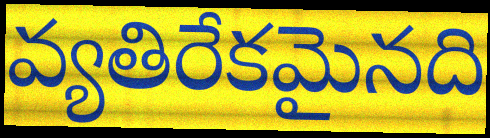
వ్యతిరేకమైనది